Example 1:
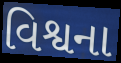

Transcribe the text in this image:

વિશ્વના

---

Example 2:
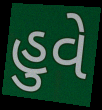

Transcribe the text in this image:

હુવે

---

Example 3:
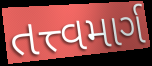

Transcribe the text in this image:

તત્ત્વમાર્ગ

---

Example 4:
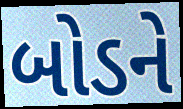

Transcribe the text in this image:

બોડને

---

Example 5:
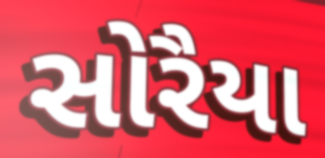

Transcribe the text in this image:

સોરૈયા